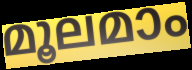
മൂലമാം